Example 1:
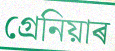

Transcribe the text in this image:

গ্ৰেনিয়াৰ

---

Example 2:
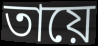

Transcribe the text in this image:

তায়ে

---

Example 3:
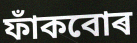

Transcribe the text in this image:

ফাঁকবোৰ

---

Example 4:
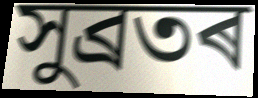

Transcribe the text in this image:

সুব্ৰতৰ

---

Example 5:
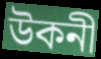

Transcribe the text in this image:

উকনী